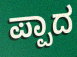
ಪ್ಪಾದ